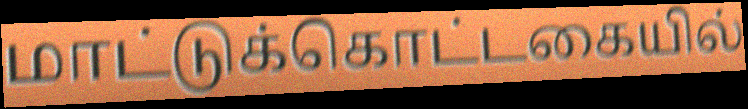
மாட்டுக்கொட்டகையில்